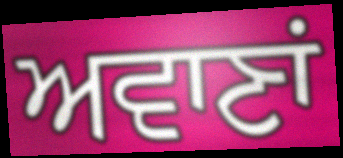
ਅਵਾਣਾਂ